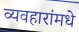
व्यवहारांमधे